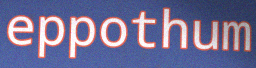
eppothum